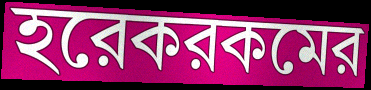
হরেকরকমের